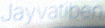
Jayvatiben